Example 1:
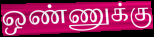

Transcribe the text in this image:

ஒண்ணுக்கு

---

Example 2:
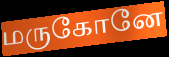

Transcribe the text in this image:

மருகோனே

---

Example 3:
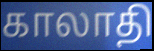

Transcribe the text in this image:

காலாதி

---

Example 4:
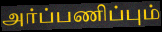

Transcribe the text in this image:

அர்ப்பணிப்பும்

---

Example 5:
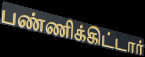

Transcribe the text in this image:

பண்ணிக்கிட்டார்